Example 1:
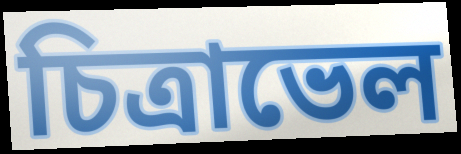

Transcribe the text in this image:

চিত্রাভেল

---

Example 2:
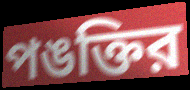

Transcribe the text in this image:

পঙক্তির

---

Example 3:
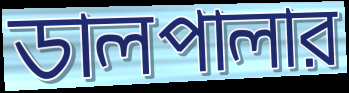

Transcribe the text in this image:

ডালপালার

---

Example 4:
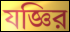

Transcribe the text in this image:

যজ্ঞির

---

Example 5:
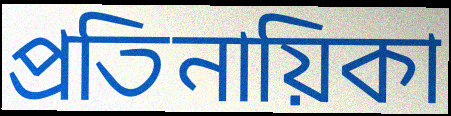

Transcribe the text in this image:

প্রতিনায়িকা